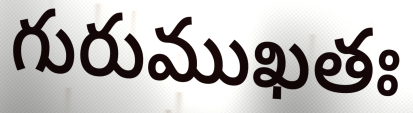
గురుముఖతః